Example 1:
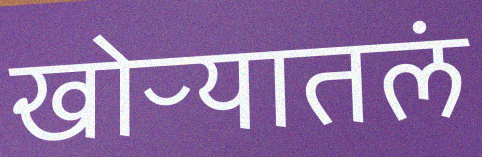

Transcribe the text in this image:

खोऱ्यातलं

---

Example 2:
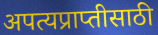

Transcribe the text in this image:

अपत्यप्राप्तीसाठी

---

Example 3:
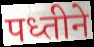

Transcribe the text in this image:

पध्तीने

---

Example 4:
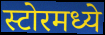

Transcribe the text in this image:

स्टोरमध्ये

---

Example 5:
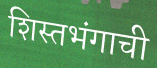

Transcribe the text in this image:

शिस्तभंगाची